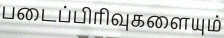
படைப்பிரிவுகளையும்